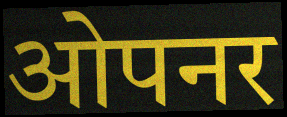
ओपनर